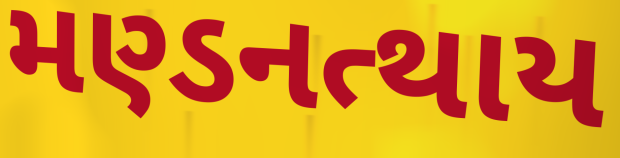
મણ્ડનત્થાય